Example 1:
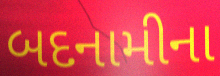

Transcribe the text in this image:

બદનામીના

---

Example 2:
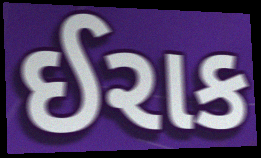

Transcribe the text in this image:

ઈરાક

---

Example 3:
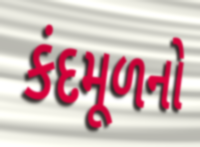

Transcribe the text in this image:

કંદમૂળનો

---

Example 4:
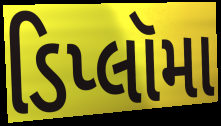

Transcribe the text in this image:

ડિપ્લૉમા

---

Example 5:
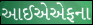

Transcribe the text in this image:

આઈએએફના